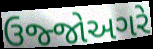
ઉજ્જોઅગરે